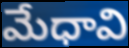
మేధావి